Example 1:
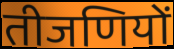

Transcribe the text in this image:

तीजणियों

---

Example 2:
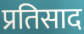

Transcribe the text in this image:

प्रतिसाद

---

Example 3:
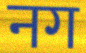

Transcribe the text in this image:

नग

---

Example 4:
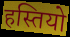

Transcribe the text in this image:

हस्तियो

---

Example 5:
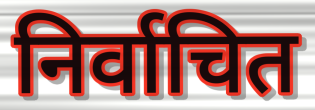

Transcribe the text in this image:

निर्वाचित